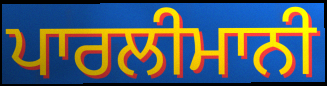
ਪਾਰਲੀਮਾਨੀ